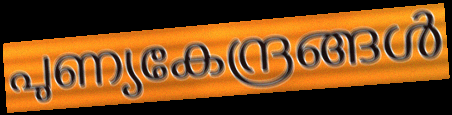
പുണ്യകേന്ദ്രങ്ങൾ